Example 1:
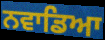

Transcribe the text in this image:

ਨਵਾਡਿਆ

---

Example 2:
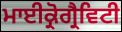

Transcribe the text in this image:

ਮਾਈਕ੍ਰੋਗ੍ਰੈਵਿਟੀ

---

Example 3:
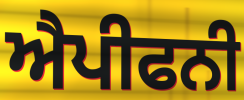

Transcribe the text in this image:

ਐਪੀਫਨੀ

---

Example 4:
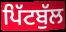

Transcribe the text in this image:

ਪਿੱਟਬੁੱਲ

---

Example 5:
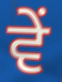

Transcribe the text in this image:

ਵੇਂ